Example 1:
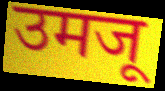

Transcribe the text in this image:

उमजू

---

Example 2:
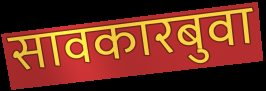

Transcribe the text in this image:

सावकारबुवा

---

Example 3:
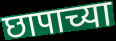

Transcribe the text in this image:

छापाच्या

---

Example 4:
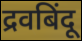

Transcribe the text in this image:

द्रवबिंदू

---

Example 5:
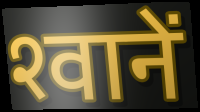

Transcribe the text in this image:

श्वानें